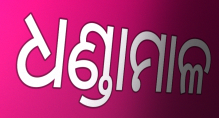
ଧଣ୍ଡାମାଳ